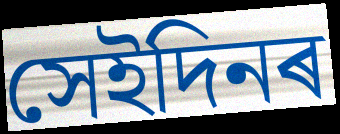
সেইদিনৰ